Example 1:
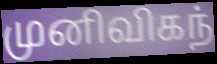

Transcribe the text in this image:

முனிவிகந்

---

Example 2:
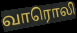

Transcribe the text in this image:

வாரொலி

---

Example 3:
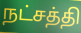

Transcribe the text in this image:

நட்சத்தி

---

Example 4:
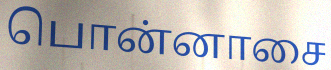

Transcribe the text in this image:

பொன்னாசை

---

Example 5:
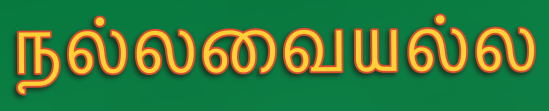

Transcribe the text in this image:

நல்லவையல்ல